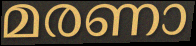
മരണാ